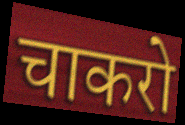
चाकरो